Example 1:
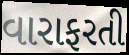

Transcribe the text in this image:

વારાફરતી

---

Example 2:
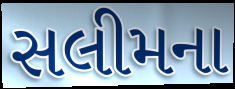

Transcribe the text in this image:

સલીમના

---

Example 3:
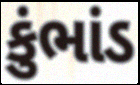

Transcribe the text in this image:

કુંભાંડ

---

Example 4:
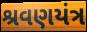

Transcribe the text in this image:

શ્રવણયંત્ર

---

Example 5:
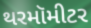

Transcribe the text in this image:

થરમૉમીટર